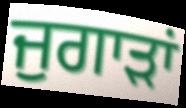
ਜੁਗਾੜਾਂ